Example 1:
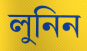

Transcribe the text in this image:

লুনিন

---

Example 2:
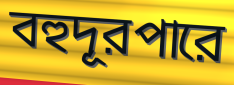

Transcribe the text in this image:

বহুদূরপারে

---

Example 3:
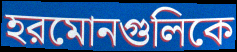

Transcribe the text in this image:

হরমোনগুলিকে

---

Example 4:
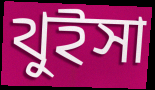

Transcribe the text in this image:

থুইসা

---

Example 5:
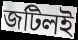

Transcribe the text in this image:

জটিলই